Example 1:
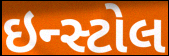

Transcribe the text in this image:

ઇન્સ્ટોલ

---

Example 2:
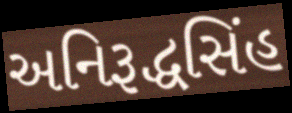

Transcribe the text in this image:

અનિરૂદ્ધસિંહ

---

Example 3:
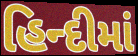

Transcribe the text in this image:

હિન્દીમાં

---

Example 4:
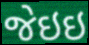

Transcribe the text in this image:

જેઇઇ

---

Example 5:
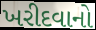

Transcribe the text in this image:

ખરીદવાનો